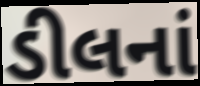
ડીલનાં